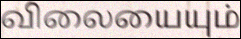
விலையையும்